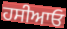
ਹਸੀਆਓ